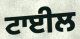
ਟਾਈਲ